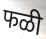
फळी